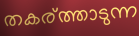
തകര്ത്താടുന്ന